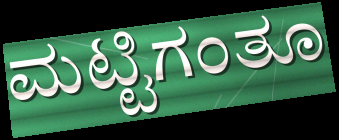
ಮಟ್ಟಿಗಂತೂ